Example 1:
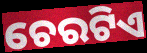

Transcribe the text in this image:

ଚେରଟିଏ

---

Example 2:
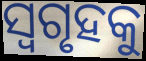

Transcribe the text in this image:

ସ୍ୱଗୃହକୁ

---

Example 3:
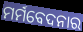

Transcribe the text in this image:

ମର୍ମବେଦନାର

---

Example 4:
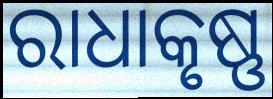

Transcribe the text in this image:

ରାଧାକୃଷ୍ଣ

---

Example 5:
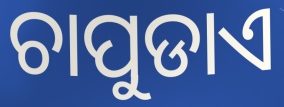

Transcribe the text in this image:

ଚାପୁଡାଏ